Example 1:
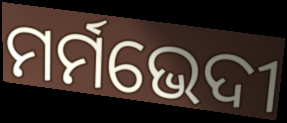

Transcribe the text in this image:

ମର୍ମଭେଦୀ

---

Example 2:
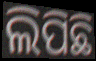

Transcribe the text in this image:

ଲିପିଛି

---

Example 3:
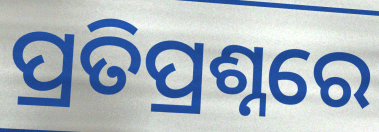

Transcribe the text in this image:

ପ୍ରତିପ୍ରଶ୍ନରେ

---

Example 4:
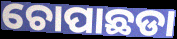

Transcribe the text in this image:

ଚୋପାଛଡା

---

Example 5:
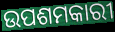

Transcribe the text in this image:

ଉପଶମକାରୀ